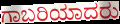
ಗಾಬರಿಯಾದರು